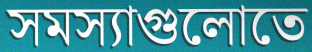
সমস্যাগুলোতে